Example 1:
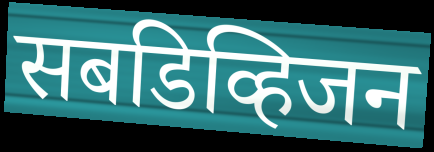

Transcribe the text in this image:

सबडिव्हिजन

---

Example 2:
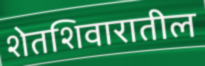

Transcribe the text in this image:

शेतशिवारातील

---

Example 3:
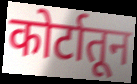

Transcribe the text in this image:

कोर्टातून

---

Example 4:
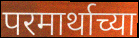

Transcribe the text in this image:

परमार्थाच्या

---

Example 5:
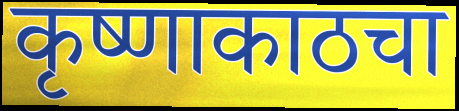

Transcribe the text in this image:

कृष्णाकाठचा